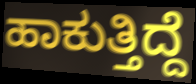
ಹಾಕುತ್ತಿದ್ದೆ